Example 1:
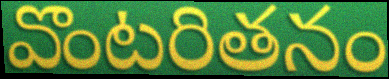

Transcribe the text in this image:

వొంటరితనం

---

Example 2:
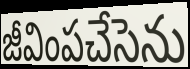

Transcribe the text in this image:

జీవింపచేసెను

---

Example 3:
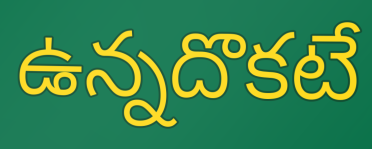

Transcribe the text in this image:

ఉన్నదొకటే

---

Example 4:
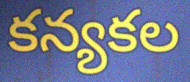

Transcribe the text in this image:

కన్యకల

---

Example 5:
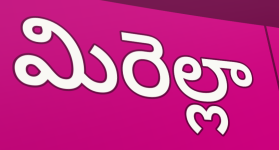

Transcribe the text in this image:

మిరెల్లా